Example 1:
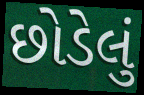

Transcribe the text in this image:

છોડેલું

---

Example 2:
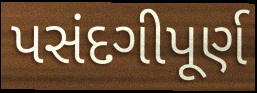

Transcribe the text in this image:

પસંદગીપૂર્ણ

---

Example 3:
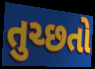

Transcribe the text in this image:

તુચ્છતો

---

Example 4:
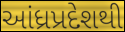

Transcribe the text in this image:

આંધ્રપ્રદેશથી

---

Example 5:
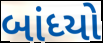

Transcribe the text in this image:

બાંધ્યો